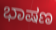
ಭಾಷಣ